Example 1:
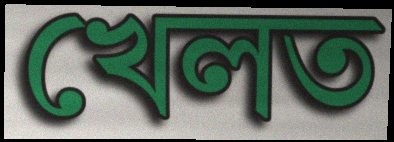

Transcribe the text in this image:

খেলত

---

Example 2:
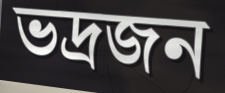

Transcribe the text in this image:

ভদ্রজন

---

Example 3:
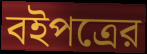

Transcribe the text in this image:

বইপত্রের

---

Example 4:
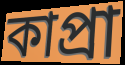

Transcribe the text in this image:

কাপ্রা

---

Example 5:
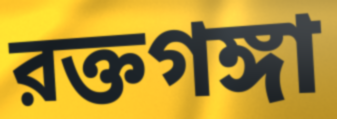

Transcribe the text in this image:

রক্তগঙ্গা